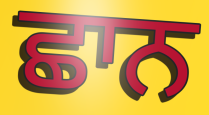
ਛਾਨ